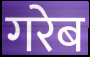
गरेब